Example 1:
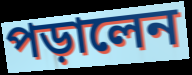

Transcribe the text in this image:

পড়ালেন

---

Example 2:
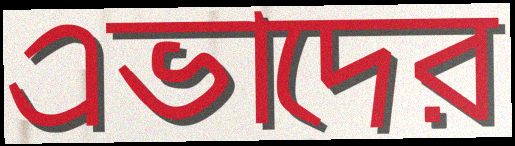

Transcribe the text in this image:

এভাদের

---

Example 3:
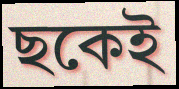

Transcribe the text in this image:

ছকেই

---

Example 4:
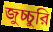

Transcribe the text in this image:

জুচ্চুরি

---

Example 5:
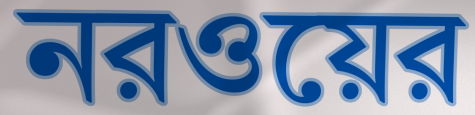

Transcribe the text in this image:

নরওয়ের